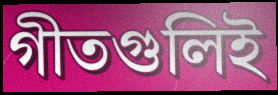
গীতগুলিই